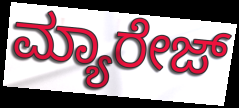
ಮ್ಯಾರೇಜ್